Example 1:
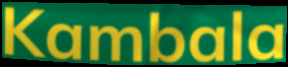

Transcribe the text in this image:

Kambala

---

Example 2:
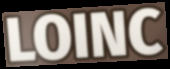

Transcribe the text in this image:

LOINC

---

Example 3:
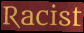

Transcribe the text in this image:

Racist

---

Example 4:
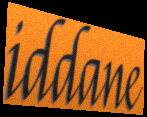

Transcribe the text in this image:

iddane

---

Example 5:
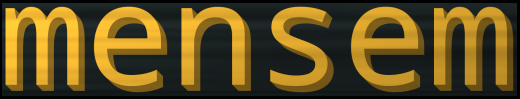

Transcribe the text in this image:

mensem